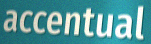
accentual